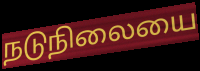
நடுநிலையை